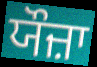
ਯੌਜ਼ਾ